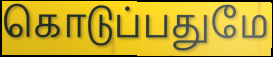
கொடுப்பதுமே